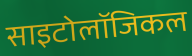
साइटोलॉजिकल